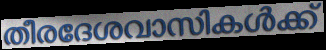
തീരദേശവാസികൾക്ക്